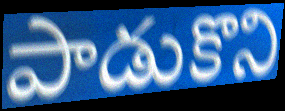
పాడుకొని